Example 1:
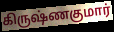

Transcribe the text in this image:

கிருஷ்ணகுமார்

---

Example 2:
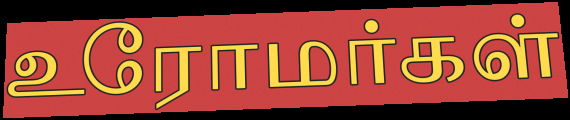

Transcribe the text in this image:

உரோமர்கள்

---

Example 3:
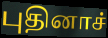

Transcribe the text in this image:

புதினாச்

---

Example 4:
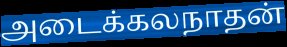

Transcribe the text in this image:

அடைக்கலநாதன்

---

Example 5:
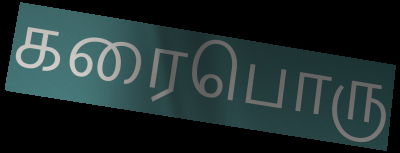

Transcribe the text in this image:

கரைபொரு